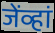
जेंव्हां